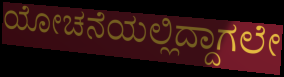
ಯೋಚನೆಯಲ್ಲಿದ್ದಾಗಲೇ